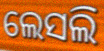
ଲେସଲି